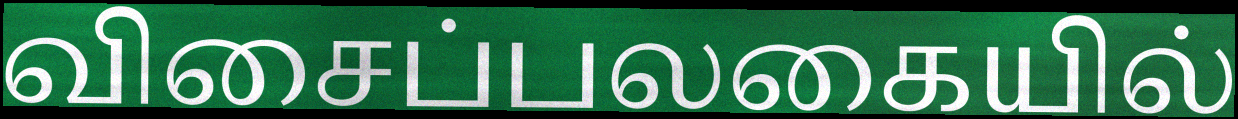
விசைப்பலகையில்